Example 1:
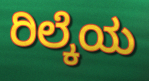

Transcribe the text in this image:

ರಿಲ್ಕೆಯ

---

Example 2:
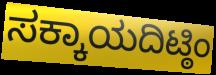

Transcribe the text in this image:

ಸಕ್ಕಾಯದಿಟ್ಠಿಂ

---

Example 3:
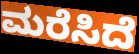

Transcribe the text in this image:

ಮರೆಸಿದೆ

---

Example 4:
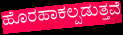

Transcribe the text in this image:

ಹೊರಹಾಕಲ್ಪಡುತ್ತವೆ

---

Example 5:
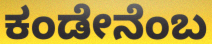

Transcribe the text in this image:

ಕಂಡೇನೆಂಬ